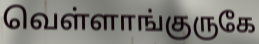
வெள்ளாங்குருகே